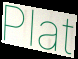
Plat